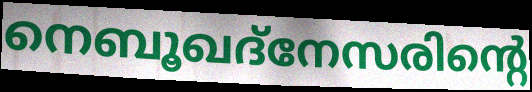
നെബൂഖദ്നേസരിന്റെ